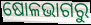
ଷୋଳଭାଗରୁ